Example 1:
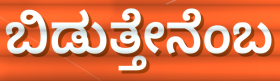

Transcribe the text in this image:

ಬಿಡುತ್ತೇನೆಂಬ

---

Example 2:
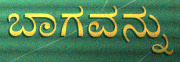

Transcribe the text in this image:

ಬಾಗವನ್ನು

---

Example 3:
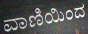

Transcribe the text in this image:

ವಾಣಿಯಿಂದ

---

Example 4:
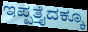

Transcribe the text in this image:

ಇಪ್ಪತ್ತೈದಕ್ಕೂ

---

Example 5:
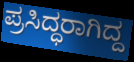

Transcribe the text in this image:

ಪ್ರಸಿದ್ಧರಾಗಿದ್ದ